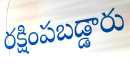
రక్షింపబడ్డారు